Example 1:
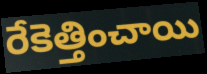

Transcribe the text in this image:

రేకెత్తించాయి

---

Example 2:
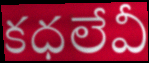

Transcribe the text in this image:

కధలేవీ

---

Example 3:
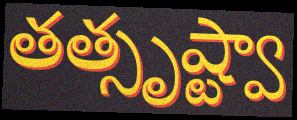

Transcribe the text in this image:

తత్సృష్ట్వా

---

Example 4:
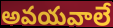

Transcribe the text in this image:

అవయవాలే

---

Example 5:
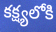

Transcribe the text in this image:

కక్ష్యలోకి